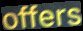
offers